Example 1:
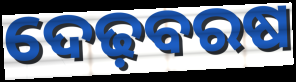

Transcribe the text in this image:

ଦେଢ଼ବରଷ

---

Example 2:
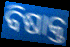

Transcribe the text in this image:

ବିଷାକ୍ତ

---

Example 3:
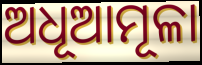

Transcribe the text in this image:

ଅଧୂଆମୂଳା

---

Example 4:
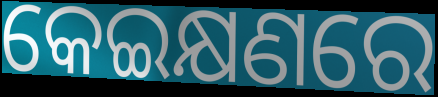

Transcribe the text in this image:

କେଇକ୍ଷଣରେ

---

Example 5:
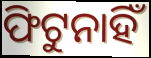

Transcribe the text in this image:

ଫିଟୁନାହିଁ